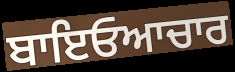
ਬਾਇਓਆਚਾਰ